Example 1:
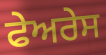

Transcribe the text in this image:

ਫੇਅਰੇਸ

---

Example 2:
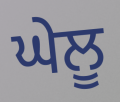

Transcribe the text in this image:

ਘੇਲੂ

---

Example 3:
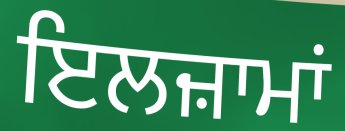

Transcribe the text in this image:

ਇਲਜ਼ਾਮਾਂ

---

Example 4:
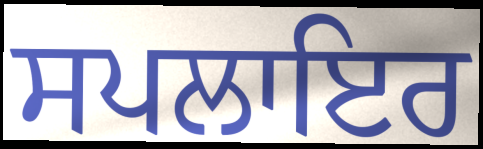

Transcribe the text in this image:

ਸਪਲਾਇਰ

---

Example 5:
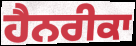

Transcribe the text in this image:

ਹੈਨਰੀਕਾ